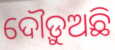
ଦୌଡ଼ୁଅଛି